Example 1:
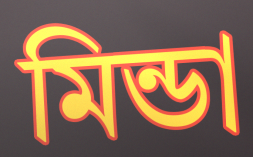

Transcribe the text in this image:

মিন্ডা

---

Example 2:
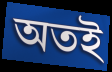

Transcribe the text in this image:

অতই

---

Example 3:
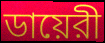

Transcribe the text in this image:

ডায়েরী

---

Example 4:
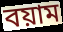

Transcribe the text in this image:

বয়াম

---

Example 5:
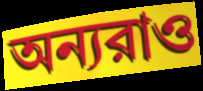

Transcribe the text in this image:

অন্যরাও